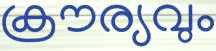
ക്രൗര്യവും